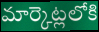
మార్కెట్లలోకి